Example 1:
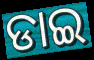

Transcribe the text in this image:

ଡାଇ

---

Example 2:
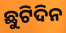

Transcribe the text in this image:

ଛୁଟିଦିନ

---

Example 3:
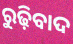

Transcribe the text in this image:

ରୁଢ଼ିବାଦ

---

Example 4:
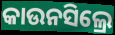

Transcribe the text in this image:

କାଉନସିଲ୍ରେ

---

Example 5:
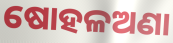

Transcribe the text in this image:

ଷୋହଳଅଣା